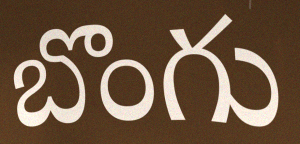
బొంగు